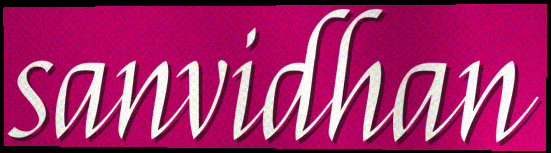
sanvidhan